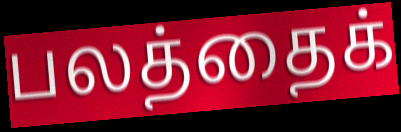
பலத்தைக்